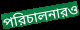
পরিচালনারও